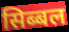
सिब्बल